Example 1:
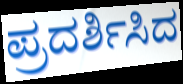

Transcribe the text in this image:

ಪ್ರದರ್ಶಿಸಿದ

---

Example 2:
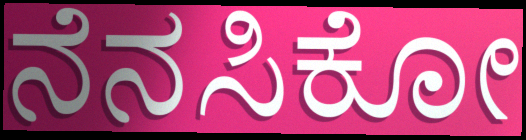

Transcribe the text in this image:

ನೆನಸಿಕೋ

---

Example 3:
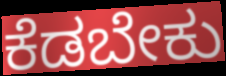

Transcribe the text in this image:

ಕೆಡಬೇಕು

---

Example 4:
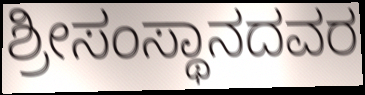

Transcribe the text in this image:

ಶ್ರೀಸಂಸ್ಥಾನದವರ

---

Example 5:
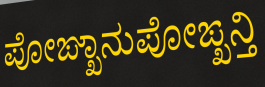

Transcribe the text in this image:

ಪೋಙ್ಖಾನುಪೋಙ್ಖನ್ತಿ